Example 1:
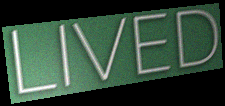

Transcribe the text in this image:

LIVED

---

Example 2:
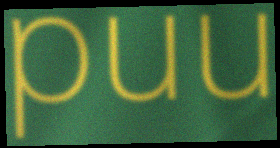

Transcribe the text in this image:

puu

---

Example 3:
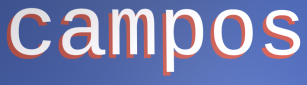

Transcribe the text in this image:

campos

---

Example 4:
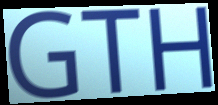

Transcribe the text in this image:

GTH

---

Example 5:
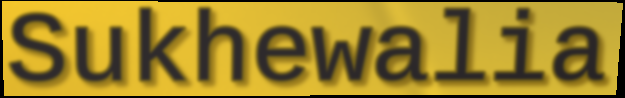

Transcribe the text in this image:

Sukhewalia